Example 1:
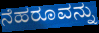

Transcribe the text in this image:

ನೆಹರೂವನ್ನು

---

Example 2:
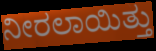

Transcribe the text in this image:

ನೀರಲಾಯಿತ್ತು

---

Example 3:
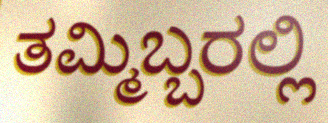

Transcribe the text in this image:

ತಮ್ಮಿಬ್ಬರಲ್ಲಿ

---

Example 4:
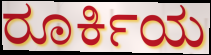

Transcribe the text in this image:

ರೂರ್ಕಿಯ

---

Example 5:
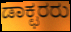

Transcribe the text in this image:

ಡಾಕ್ಟರರು